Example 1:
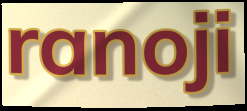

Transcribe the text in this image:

ranoji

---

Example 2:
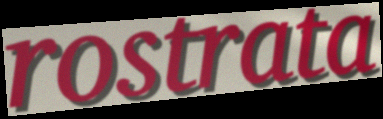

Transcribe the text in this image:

rostrata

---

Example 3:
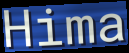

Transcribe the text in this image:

Hima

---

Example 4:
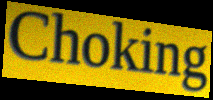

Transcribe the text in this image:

Choking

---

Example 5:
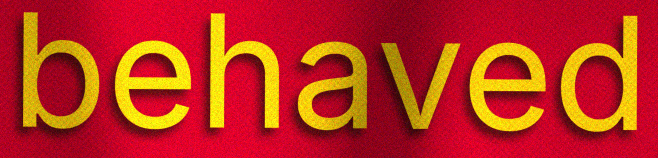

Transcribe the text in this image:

behaved